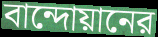
বান্দোয়ানের